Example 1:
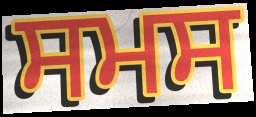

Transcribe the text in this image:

ਸਮਸ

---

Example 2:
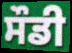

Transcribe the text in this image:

ਸੌਡੀ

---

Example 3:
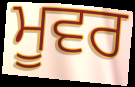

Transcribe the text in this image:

ਮੂਵਰ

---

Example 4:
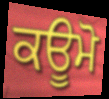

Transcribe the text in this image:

ਕਊਮੋ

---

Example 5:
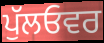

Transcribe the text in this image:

ਪੁੱਲਓਵਰ